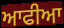
ਆਫੀਆ